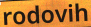
rodovih